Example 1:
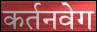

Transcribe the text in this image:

कर्तनवेग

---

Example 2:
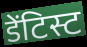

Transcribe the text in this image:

डेंटिस्ट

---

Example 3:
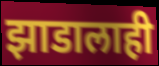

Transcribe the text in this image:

झाडालाही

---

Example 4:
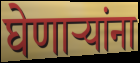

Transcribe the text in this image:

घेणाऱ्यांना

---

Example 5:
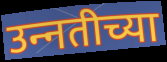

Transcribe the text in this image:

उन्नतीच्या